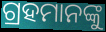
ଗ୍ରହମାନଙ୍କୁ